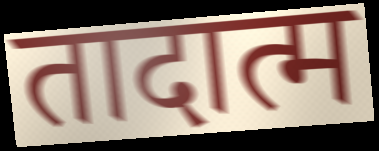
तादात्म